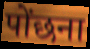
पोंछना